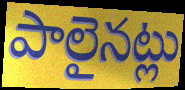
పాలైనట్లు